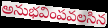
అనుభవింపవలసిన